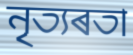
নৃত্যৰতা